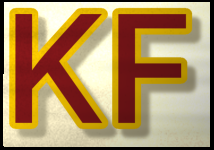
KF